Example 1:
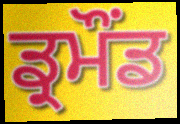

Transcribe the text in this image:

ਡ੍ਰਮੌਂਡ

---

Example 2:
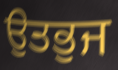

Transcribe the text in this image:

ਉਤਭੁਜ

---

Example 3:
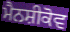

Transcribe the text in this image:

ਮੈਨਸ਼ੀਕੋਵ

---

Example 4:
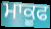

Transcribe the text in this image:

ਮਾਕੂਫ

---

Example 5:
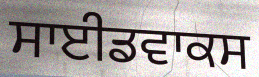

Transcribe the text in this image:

ਸਾਈਡਵਾਕਸ